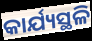
କାର୍ଯ୍ୟସ୍ଥଳି